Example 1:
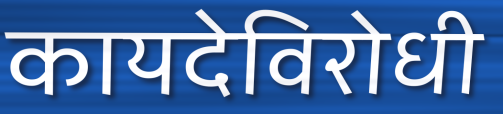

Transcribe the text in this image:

कायदेविरोधी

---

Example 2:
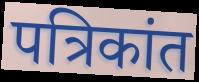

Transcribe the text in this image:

पत्रिकांत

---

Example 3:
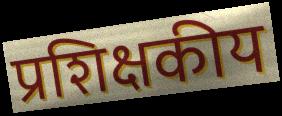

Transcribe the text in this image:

प्रशिक्षकीय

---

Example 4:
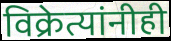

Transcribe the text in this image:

विक्रेत्यांनीही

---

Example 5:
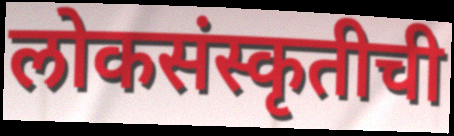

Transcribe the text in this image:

लोकसंस्कृतीची